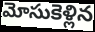
మోసుకెళ్లిన